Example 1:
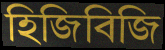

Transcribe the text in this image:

হিজিবিজি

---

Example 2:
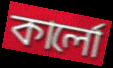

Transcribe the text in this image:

কার্লো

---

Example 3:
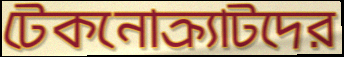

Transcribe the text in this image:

টেকনোক্র্যাটদের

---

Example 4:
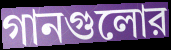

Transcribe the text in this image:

গানগুলোর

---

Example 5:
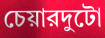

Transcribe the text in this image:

চেয়ারদুটো